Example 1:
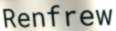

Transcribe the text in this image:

Renfrew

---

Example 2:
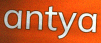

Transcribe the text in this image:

antya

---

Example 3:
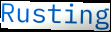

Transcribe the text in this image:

Rusting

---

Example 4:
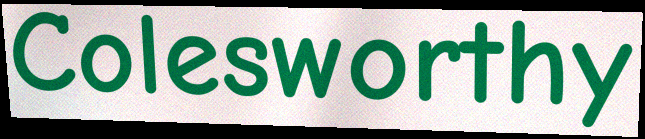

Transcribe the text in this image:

Colesworthy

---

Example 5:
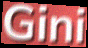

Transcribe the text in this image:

Gini